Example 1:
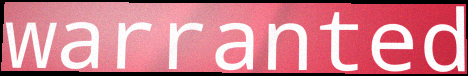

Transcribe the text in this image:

warranted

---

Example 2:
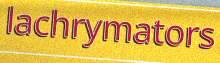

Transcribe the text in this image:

lachrymators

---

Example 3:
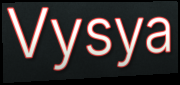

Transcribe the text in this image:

Vysya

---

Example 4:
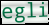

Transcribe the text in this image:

egli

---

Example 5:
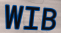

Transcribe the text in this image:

WIB